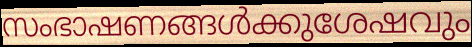
സംഭാഷണങ്ങൾക്കുശേഷവും